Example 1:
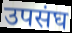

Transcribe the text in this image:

उपसंघ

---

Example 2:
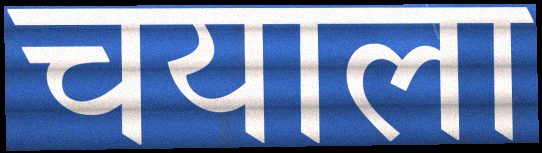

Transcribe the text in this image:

चयाला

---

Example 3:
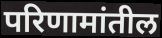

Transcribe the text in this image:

परिणामांतील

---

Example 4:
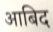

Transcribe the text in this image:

आबिद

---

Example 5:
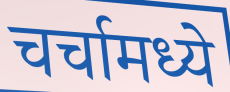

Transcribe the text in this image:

चर्चामध्ये